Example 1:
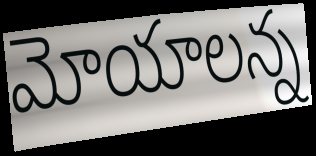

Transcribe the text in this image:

మోయాలన్న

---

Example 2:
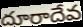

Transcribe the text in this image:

దూరాదేవ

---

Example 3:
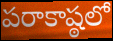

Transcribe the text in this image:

పరాకాష్ఠలో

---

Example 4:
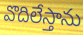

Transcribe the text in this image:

వొదిలేస్తాను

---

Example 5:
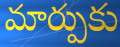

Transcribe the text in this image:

మార్పుకు